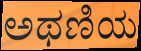
ಅಥಣಿಯ